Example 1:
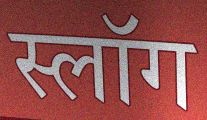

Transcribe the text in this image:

स्लॉग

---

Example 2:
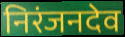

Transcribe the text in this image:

निरंजनदेव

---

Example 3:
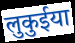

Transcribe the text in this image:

लुकुईया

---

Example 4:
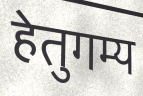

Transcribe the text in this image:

हेतुगम्य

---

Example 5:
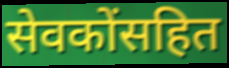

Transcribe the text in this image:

सेवकोंसहित